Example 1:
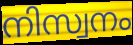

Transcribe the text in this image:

നിസ്വനം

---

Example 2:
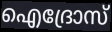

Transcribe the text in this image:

ഐദ്രോസ്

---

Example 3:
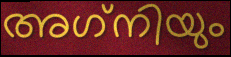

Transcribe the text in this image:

അഗ്‌നിയും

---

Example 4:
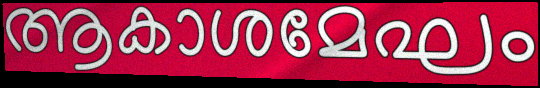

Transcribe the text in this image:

ആകാശമേഘം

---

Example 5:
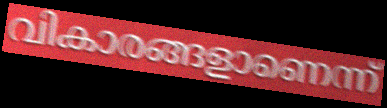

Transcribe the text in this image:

വികാരങ്ങളാണെന്ന്